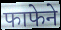
फाफेने